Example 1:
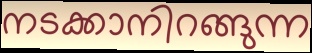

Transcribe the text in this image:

നടക്കാനിറങ്ങുന്ന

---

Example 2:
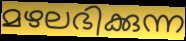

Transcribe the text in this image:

മഴലഭിക്കുന്ന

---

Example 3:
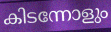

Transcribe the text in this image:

കിടന്നോളും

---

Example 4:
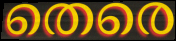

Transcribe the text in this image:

തെരെ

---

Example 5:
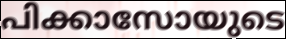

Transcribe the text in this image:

പിക്കാസോയുടെ